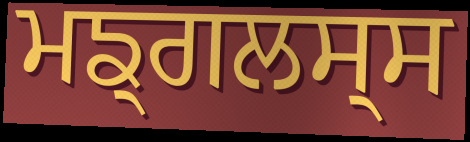
ਮਙ੍ਗਲਸ੍ਸ